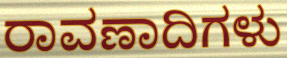
ರಾವಣಾದಿಗಳು